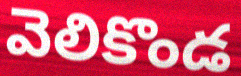
వెలికొండ